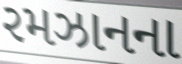
રમઝાનના